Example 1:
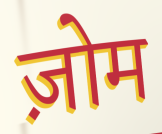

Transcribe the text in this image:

ज़ोम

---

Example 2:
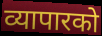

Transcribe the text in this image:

व्यापारको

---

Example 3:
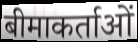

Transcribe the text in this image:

बीमाकर्ताओं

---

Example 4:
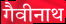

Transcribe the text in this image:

गैवीनाथ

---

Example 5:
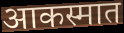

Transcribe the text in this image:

आकस्मात